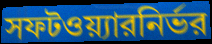
সফটওয়্যারনির্ভর